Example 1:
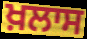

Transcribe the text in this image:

ਖ਼ਲਾਸ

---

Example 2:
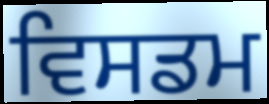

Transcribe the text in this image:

ਵਿਸਡਮ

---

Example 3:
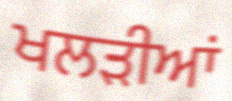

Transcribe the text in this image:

ਖਲੜੀਆਂ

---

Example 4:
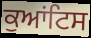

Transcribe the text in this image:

ਕੁਆਂਟਿਸ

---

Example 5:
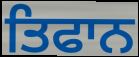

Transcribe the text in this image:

ਤਿਫਾਨ